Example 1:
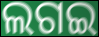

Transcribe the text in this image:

ଲଗଇ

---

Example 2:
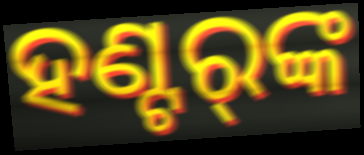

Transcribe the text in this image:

ହଣ୍ଟର୍‌ଙ୍କ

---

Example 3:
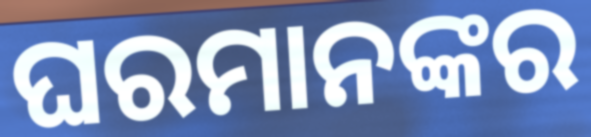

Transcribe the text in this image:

ଘରମାନଙ୍କର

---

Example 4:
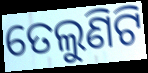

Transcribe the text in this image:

ତେଲୁଣିଟି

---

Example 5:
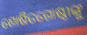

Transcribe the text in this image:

ଶୋଷିତଗୋଷ୍ଠୀଙ୍କୁ